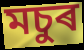
মচুৰ